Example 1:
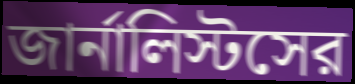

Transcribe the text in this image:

জার্নালিস্টসের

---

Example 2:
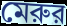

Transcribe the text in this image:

মেরুর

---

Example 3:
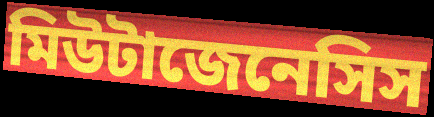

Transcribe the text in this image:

মিউটাজেনেসিস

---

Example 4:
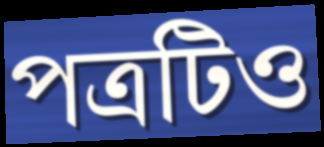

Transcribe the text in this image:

পত্রটিও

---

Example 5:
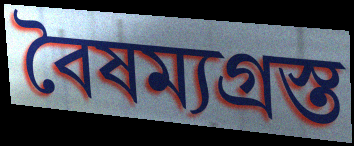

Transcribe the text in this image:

বৈষম্যগ্রস্ত